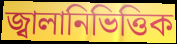
জ্বালানিভিত্তিক